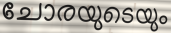
ചോരയുടെയും